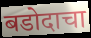
बडोदाचा